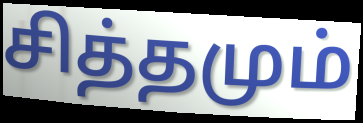
சித்தமும்